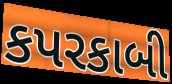
કપરકાબી